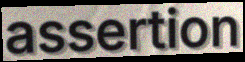
assertion